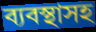
ব্যবস্থাসহ